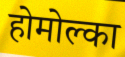
होमोल्का